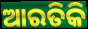
ଆରତିକି